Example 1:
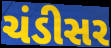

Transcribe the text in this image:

ચંડીસર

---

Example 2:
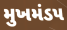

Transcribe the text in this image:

મુખમંડપ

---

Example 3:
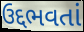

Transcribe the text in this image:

ઉદ્દભવતાં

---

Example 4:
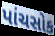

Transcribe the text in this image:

પાંચસોક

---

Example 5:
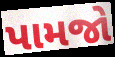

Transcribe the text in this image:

પામજો